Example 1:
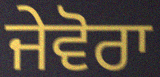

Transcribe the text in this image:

ਜੇਵੋਰਾ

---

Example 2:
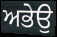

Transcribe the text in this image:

ਅਭੇਉ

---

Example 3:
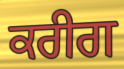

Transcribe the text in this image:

ਕਰੀਗ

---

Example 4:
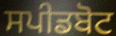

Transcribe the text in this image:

ਸਪੀਡਬੋਟ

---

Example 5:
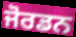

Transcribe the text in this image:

ਜੋਰਡਨ